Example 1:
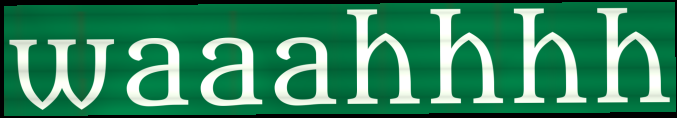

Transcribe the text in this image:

waaahhhh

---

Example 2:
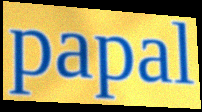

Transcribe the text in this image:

papal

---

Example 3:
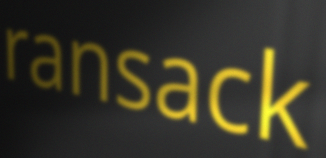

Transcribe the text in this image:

ransack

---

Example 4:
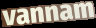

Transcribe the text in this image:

vannam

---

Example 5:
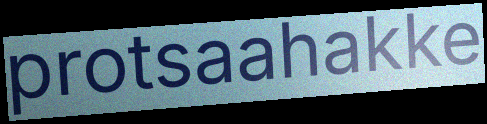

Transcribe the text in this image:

protsaahakke